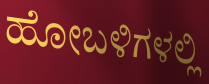
ಹೋಬಳಿಗಳಲ್ಲಿ